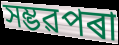
সম্ভৱপৰা